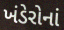
ખંડેરોનાં